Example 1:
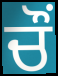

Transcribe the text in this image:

ਚੌਂ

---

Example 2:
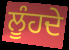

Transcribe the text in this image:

ਲੂੰਹਦੇ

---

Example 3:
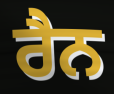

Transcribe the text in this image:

ਰੈਨ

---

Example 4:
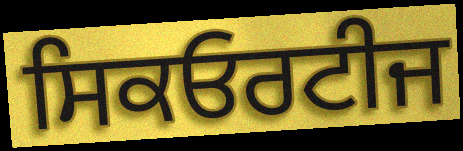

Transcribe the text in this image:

ਸਿਕਓਰਟੀਜ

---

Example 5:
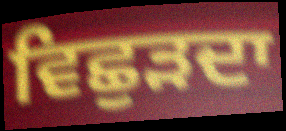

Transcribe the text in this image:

ਵਿਛੁੜਦਾ